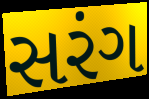
સરંગ